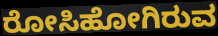
ರೋಸಿಹೋಗಿರುವ